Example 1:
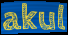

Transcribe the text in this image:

akul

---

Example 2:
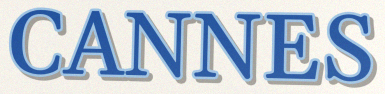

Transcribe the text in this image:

CANNES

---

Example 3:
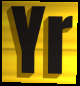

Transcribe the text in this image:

Yr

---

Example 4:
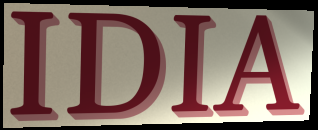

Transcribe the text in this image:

IDIA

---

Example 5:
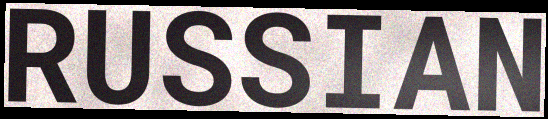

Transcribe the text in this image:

RUSSIAN